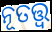
ନୂତତ୍ତ୍ବ